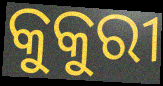
କୁକୁରୀ